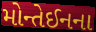
મોન્તેઈનના